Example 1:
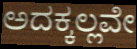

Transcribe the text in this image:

ಅದಕ್ಕಲ್ಲವೇ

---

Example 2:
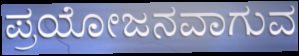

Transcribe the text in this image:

ಪ್ರಯೋಜನವಾಗುವ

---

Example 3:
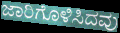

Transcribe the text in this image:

ಜಾರಿಗೊಳಿಸಿದವು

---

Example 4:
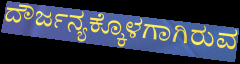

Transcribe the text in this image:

ದೌರ್ಜನ್ಯಕ್ಕೊಳಗಾಗಿರುವ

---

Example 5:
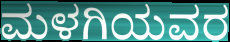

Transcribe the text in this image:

ಮಳಗಿಯವರ